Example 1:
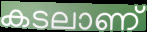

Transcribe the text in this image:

കടലാണ്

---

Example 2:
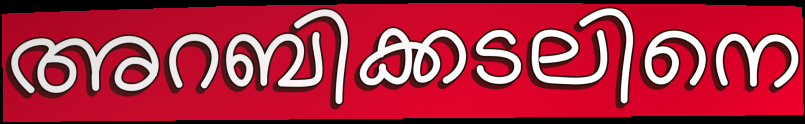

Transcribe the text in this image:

അറബിക്കടലിനെ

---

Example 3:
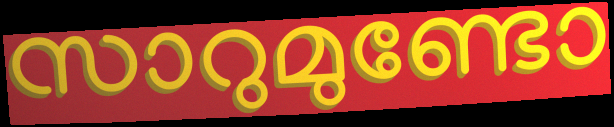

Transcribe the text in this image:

സാറുമുണ്ടോ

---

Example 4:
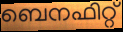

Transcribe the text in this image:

ബെനഫിറ്റ്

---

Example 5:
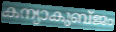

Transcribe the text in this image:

കന്യാകുബ്ജം